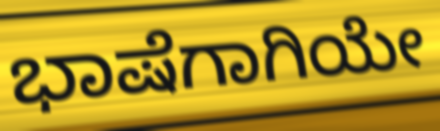
ಭಾಷೆಗಾಗಿಯೇ